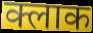
क्लाक